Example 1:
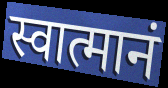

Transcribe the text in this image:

स्वात्मानं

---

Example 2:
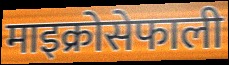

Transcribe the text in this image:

माइक्रोसेफाली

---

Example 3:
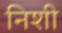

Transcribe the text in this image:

निशी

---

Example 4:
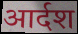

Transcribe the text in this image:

आर्दश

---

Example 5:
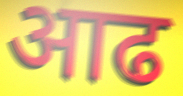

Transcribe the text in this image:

आढ